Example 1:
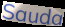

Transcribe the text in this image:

Sauda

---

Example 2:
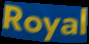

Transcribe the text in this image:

Royal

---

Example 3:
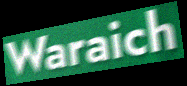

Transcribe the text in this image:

Waraich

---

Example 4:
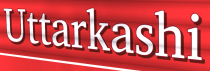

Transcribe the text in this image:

Uttarkashi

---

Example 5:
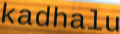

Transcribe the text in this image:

kadhalu